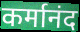
कर्मानंद